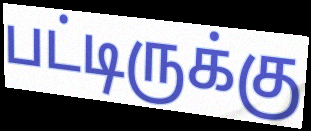
பட்டிருக்கு